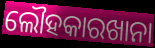
ଲୌହକାରଖାନା